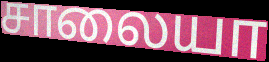
சாலையா